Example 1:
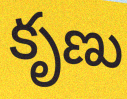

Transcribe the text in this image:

కృణు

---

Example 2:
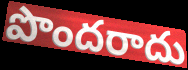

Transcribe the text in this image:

పొందరాదు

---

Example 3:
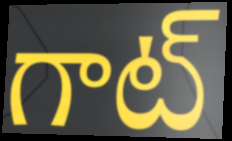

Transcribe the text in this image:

గాట్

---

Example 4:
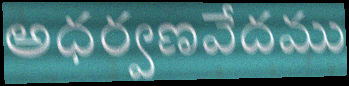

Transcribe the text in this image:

అధర్వణవేదము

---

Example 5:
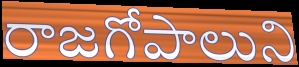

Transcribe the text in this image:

రాజగోపాలుని